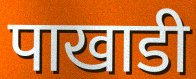
पाखाडी